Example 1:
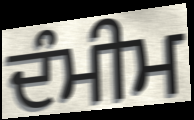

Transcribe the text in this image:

ਦੰਮੀਮ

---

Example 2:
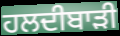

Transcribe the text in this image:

ਹਲਦੀਬਾੜੀ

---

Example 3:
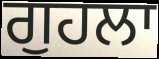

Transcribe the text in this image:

ਗੁਹਲਾ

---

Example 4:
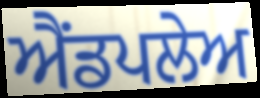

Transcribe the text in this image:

ਐਂਡਪਲੇਅ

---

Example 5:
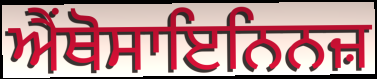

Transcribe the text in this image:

ਐਂਥੋਸਾਇਨਿਨਜ਼